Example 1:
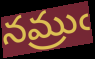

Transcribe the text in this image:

నమ్రుఁ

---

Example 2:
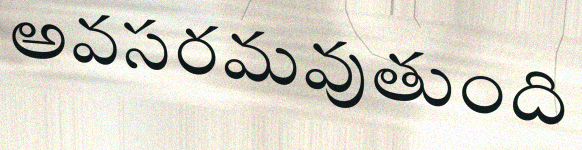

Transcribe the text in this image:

అవసరమవుతుంది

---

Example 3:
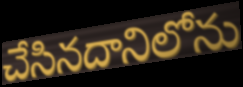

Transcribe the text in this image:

చేసినదానిలోను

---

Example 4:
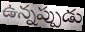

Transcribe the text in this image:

ఉన్నప్పుడు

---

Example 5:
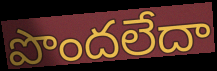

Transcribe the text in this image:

పొందలేదా